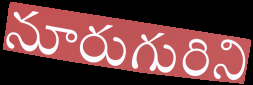
నూరుగురిని